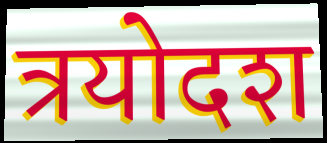
त्रयोदश